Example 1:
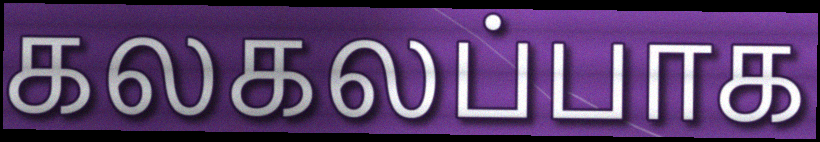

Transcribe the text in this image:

கலகலப்பாக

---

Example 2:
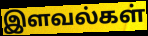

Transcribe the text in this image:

இளவல்கள்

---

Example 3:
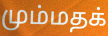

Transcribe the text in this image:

மும்மதக்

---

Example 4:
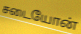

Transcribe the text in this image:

சடையோன்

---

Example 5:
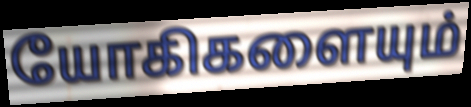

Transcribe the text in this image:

யோகிகளையும்